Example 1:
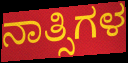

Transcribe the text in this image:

ನಾತ್ಸಿಗಳ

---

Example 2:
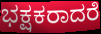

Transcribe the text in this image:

ಭಕ್ಷಕರಾದರೆ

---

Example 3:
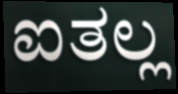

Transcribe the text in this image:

ಐತಲ್ಲ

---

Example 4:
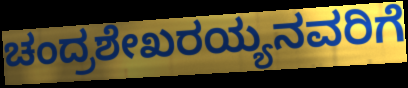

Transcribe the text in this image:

ಚಂದ್ರಶೇಖರಯ್ಯನವರಿಗೆ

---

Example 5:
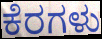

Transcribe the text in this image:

ಕೆರಗಳು